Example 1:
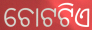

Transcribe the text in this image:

ଚୋଟଟିଏ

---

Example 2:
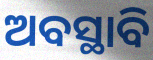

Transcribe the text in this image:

ଅବସ୍ଥାବି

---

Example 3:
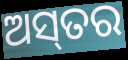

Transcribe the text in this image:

ଅସ୍‌ତର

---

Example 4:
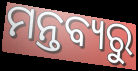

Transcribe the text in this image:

ମନ୍ତବ୍ୟରୁ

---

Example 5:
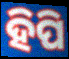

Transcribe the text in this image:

ହିପି